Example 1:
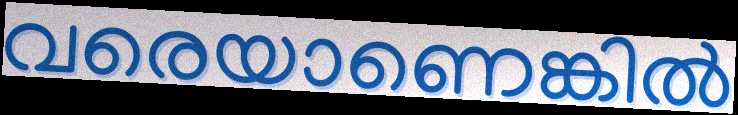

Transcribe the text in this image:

വരെയാണെങ്കിൽ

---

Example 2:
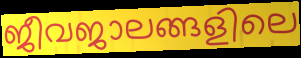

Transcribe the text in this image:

ജീവജാലങ്ങളിലെ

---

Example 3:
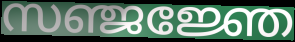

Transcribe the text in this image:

സഞ്ജജ്ഞേ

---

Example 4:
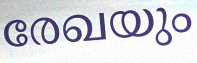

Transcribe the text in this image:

രേഖയും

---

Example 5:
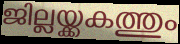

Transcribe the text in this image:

ജില്ലയ്ക്കകത്തും